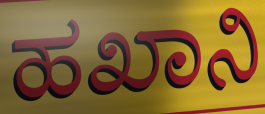
ಹಖಾನಿ